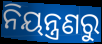
ନିୟନ୍ତ୍ରଣରୁ